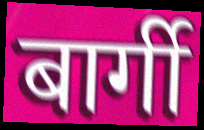
बार्गी